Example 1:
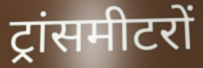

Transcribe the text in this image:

ट्रांसमीटरों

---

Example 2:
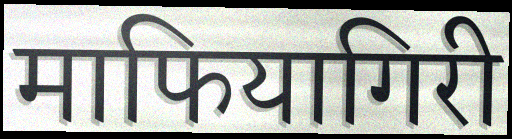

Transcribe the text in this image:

माफियागिरी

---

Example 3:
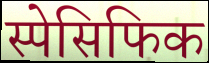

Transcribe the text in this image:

स्पेसिफिक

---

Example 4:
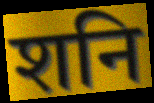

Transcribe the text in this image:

शनि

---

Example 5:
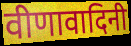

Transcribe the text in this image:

वीणावादिनी